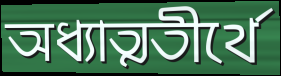
অধ্যাত্মতীর্থে